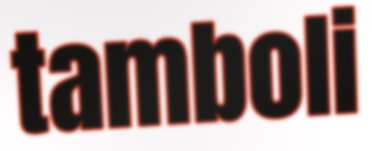
tamboli